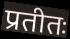
प्रतीतः